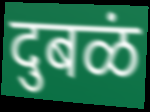
दुबळं